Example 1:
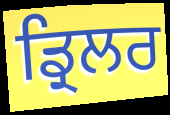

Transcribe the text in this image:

ਡ੍ਰਿਲਰ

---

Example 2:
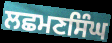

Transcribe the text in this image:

ਲਛਮਣਸਿੰਘ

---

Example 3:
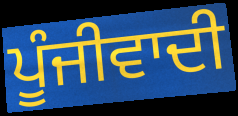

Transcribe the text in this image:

ਪੂੰਜੀਵਾਦੀ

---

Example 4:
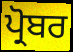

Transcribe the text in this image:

ਪ੍ਰੋਬਰ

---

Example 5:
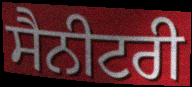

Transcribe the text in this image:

ਸੈਨੀਟਰੀ